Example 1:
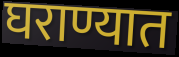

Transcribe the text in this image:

घराण्यात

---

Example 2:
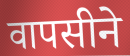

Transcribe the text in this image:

वापसीने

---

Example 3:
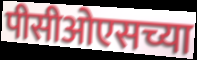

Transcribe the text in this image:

पीसीओएसच्या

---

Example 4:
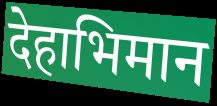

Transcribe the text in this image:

देहाभिमान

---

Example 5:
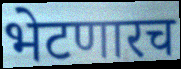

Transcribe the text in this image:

भेटणारच